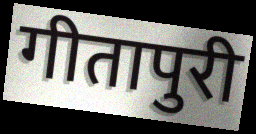
गीतापुरी